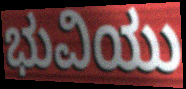
ಭುವಿಯು